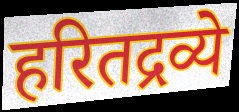
हरितद्रव्ये